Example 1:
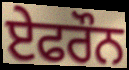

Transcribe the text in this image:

ਏਫਰੌਨ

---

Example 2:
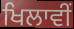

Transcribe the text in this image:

ਖਿਲਾਵੀਂ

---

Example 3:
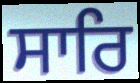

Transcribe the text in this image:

ਸਾਰਿ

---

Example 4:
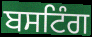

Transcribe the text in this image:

ਬਸਟਿੰਗ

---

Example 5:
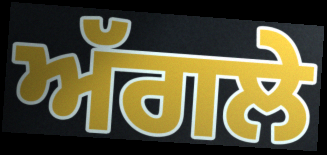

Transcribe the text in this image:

ਅੱਗਲੇ